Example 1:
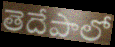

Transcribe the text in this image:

తెదేపాలో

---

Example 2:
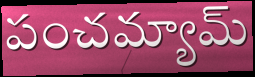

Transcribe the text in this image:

పంచమ్యామ్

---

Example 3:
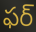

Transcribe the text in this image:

ఫర్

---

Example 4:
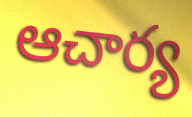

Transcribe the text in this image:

ఆచార్య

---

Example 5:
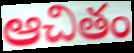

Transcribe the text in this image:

ఆచితం